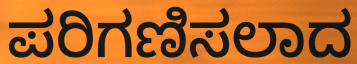
ಪರಿಗಣಿಸಲಾದ